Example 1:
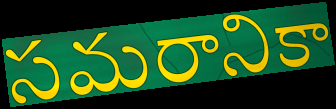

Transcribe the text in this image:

సమరానికా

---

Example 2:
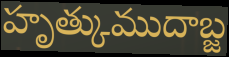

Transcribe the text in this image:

హృత్కుముదాబ్జ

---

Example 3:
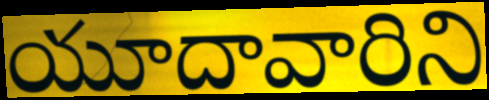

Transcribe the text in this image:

యూదావారిని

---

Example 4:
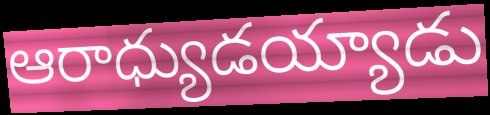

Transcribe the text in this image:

ఆరాధ్యుడయ్యాడు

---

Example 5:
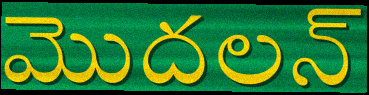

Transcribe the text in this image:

మొదలన్